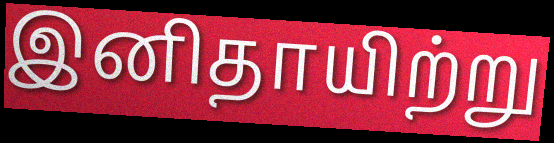
இனிதாயிற்று